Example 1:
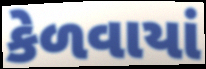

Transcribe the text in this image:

કેળવાયાં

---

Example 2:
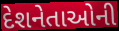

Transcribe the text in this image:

દેશનેતાઓની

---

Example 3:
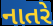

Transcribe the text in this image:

નાતરે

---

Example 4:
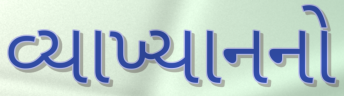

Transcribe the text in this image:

વ્યાખ્યાનનો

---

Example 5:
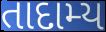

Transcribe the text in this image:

તાદામ્ય